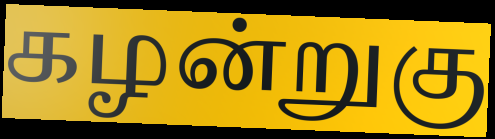
கழன்றுகு